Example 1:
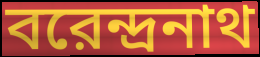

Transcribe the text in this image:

বরেন্দ্রনাথ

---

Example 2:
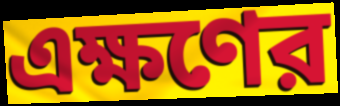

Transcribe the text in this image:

এক্ষণের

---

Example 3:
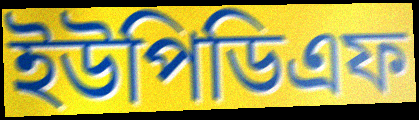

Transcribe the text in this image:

ইউপিডিএফ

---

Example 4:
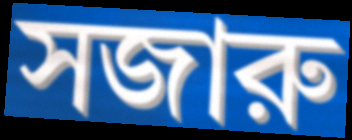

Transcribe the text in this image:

সজারু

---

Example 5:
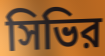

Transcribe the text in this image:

সিভির